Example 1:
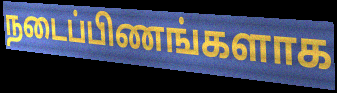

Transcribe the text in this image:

நடைப்பிணங்களாக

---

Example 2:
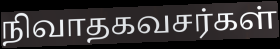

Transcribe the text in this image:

நிவாதகவசர்கள்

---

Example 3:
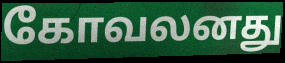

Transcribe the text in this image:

கோவலனது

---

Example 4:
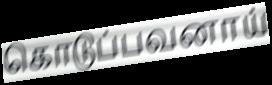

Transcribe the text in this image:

கொடுப்பவனாய்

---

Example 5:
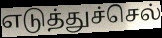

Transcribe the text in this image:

எடுத்துச்செல்